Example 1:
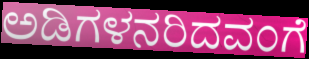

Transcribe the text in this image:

ಅಡಿಗಳನರಿದವಂಗೆ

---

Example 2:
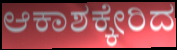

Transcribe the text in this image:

ಆಕಾಶಕ್ಕೇರಿದ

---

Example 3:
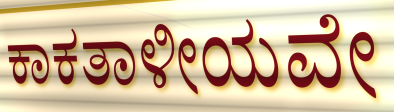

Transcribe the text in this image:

ಕಾಕತಾಳೀಯವೇ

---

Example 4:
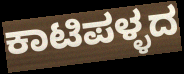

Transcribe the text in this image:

ಕಾಟಿಪಳ್ಳದ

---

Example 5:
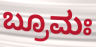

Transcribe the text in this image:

ಬ್ರೂಮಃ